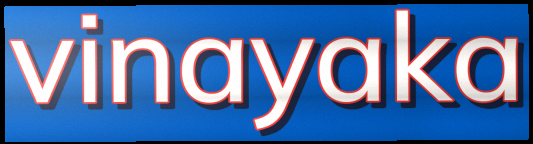
vinayaka